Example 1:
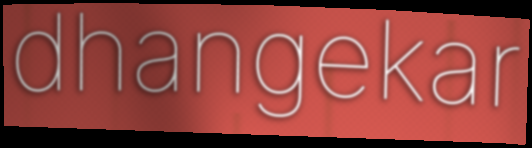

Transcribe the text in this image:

dhangekar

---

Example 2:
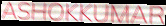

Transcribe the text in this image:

ASHOKKUMAR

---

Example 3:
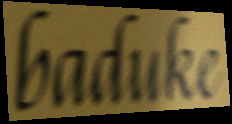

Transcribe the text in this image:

baduke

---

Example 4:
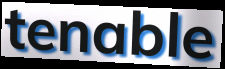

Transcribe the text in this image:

tenable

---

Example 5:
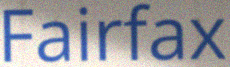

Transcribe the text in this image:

Fairfax